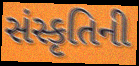
સંસ્કૃતિની